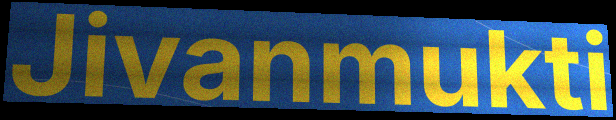
Jivanmukti